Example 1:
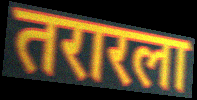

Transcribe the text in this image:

तरारला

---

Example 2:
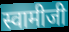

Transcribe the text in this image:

स्वामीजी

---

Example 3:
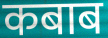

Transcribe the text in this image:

कबाब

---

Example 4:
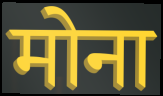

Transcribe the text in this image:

मोना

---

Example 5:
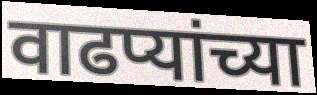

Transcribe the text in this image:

वाढप्यांच्या